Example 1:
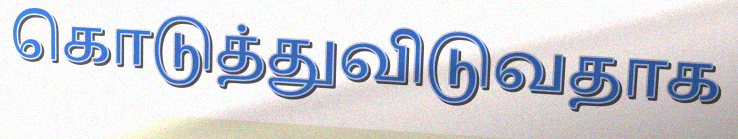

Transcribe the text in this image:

கொடுத்துவிடுவதாக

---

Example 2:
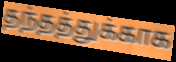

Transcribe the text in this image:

தந்தத்துக்காக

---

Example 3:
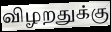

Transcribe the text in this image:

விழறதுக்கு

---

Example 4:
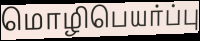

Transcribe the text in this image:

மொழிபெயர்ப்பு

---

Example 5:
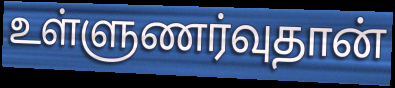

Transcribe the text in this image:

உள்ளுணர்வுதான்